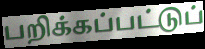
பறிக்கப்பட்டுப்